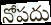
నోపదు